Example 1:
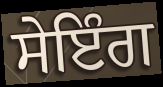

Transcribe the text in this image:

ਸੇਇੰਗ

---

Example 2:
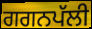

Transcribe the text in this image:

ਗਗਨਪੱਲੀ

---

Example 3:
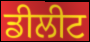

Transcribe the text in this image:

ਡੀਲੀਟ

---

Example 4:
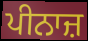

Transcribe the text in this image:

ਪੀਨਾਜ਼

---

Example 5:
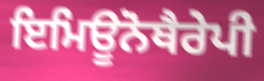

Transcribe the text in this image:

ਇਮਿਊਨੋਥੈਰੇਪੀ